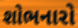
શોભનારો